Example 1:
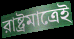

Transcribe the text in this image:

রাষ্ট্রমাত্রেই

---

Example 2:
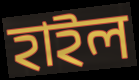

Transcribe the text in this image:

হাইল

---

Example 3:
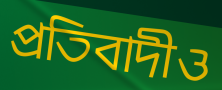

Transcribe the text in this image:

প্রতিবাদীও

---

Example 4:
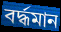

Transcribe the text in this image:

বর্দ্ধমান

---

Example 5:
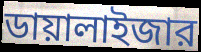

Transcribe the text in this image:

ডায়ালাইজার